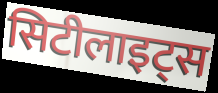
सिटीलाइट्स